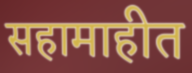
सहामाहीत